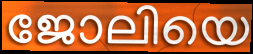
ജോലിയെ